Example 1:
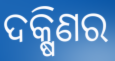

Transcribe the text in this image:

ଦକ୍ଷିଣର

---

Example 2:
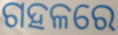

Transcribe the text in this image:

ଗହଳରେ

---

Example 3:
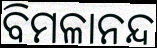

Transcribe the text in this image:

ବିମଳାନନ୍ଦ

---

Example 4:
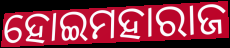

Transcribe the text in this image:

ହୋଇମହାରାଜ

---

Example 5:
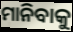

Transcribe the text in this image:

ମାନିବାକୁ